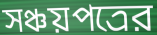
সঞ্চয়পত্রের